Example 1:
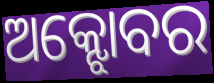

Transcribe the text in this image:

ଅକ୍ଝୋବର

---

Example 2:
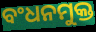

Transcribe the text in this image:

ବଂଧନମୁକ୍ତ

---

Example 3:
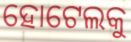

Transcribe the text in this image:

ହୋଟେଲକୁ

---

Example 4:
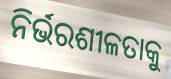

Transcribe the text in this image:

ନିର୍ଭରଶୀଳତାକୁ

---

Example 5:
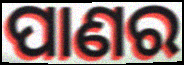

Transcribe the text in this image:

ପାଣର